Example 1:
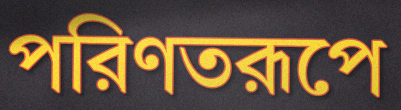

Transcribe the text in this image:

পরিণতরূপে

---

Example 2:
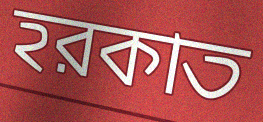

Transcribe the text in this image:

হরকাত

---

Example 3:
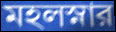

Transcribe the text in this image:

মহলস্নার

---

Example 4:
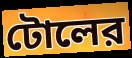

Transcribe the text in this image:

টোলের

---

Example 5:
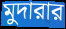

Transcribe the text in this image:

মুদারার